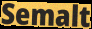
Semalt